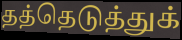
தத்தெடுத்துக்